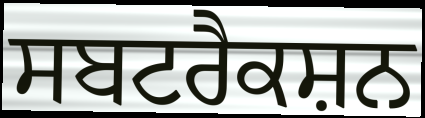
ਸਬਟਰੈਕਸ਼ਨ